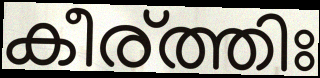
കീര്ത്തിഃ